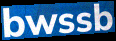
bwssb